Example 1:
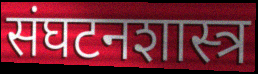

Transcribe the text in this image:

संघटनशास्त्र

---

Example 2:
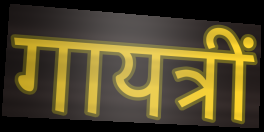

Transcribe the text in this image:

गायत्रीं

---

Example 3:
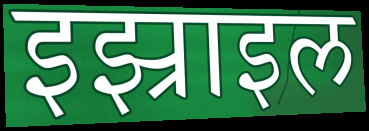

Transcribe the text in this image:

इझ्राइल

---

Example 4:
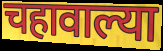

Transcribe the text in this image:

चहावाल्या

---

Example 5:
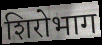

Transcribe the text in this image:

शिरोभाग